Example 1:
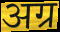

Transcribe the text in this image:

अग्र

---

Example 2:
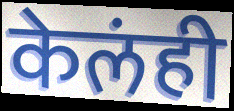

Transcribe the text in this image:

केलंही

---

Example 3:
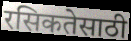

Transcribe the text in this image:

रसिकतेसाठी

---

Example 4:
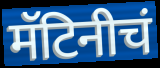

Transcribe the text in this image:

मॅटिनीचं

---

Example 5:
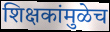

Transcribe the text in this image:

शिक्षकांमुळेच